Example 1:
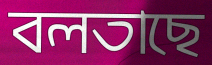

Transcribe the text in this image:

বলতাছে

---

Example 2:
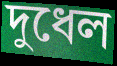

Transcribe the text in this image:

দুধেল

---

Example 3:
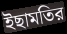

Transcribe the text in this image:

ইছামতির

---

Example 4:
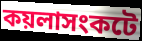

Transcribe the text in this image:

কয়লাসংকটে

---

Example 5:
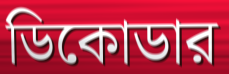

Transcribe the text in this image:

ডিকোডার